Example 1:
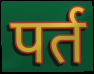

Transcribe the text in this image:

पर्त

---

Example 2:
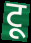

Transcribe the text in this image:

टू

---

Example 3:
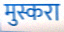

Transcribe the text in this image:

मुस्करा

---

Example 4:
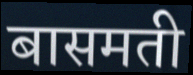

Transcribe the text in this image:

बासमती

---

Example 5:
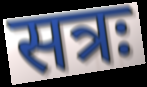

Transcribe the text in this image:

सत्रः